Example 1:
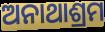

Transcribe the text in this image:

ଅନାଥାଶ୍ରମ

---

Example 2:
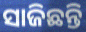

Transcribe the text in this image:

ସାଜିଛନ୍ତି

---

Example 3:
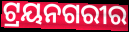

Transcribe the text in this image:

ଟ୍ରୟନଗରୀର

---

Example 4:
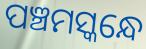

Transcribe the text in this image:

ପଞ୍ଚମସ୍କନ୍ଧେ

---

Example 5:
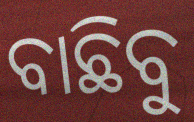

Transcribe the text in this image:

ବାଛିବୁ